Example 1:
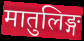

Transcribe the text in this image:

मातुलिङ्ग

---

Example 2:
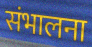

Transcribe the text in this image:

संभालना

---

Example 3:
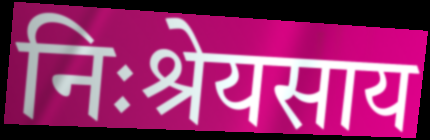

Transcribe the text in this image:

निःश्रेयसाय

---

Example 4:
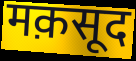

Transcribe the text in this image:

मक़सूद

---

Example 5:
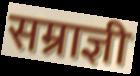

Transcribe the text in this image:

सम्राज्ञी